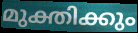
മുക്തിക്കും